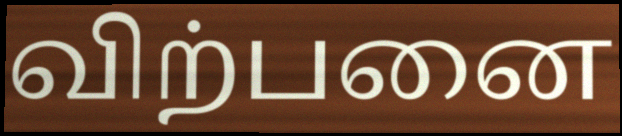
விற்பனை